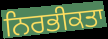
ਨਿਰਭੀਕਤਾ